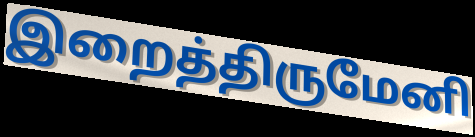
இறைத்திருமேனி